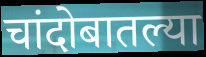
चांदोबातल्या